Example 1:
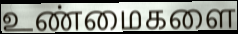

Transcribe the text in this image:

உண்மைகளை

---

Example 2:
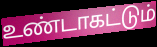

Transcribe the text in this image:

உண்டாகட்டும்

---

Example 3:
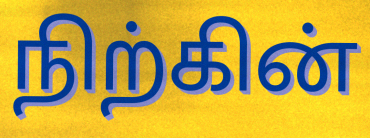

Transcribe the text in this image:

நிற்கின்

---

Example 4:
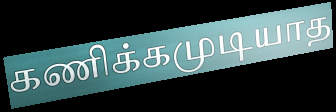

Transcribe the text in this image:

கணிக்கமுடியாத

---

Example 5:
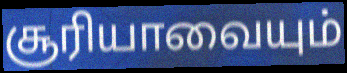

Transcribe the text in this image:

சூரியாவையும்